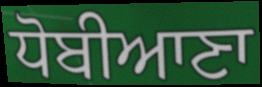
ਧੋਬੀਆਣਾ